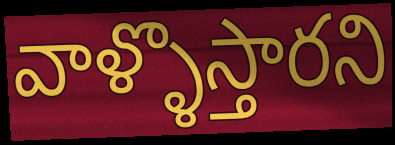
వాళ్ళొస్తారని